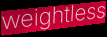
weightless